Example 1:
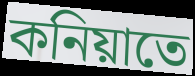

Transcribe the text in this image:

কনিয়াতে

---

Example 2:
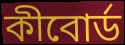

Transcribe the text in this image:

কীবোর্ড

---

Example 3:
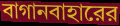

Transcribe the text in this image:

বাগানবাহারের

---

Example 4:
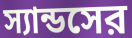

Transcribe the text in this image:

স্যান্ডসের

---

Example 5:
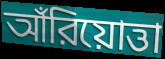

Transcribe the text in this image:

আঁরিয়োত্তা